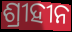
ଶ୍ରୀହୀନ